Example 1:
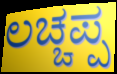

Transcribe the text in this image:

ಲಚ್ಚಪ್ಪ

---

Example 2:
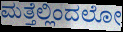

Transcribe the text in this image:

ಮತ್ತೆಲ್ಲಿಂದಲೋ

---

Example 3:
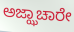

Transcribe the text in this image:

ಅಜ್ಝಾಚಾರೇ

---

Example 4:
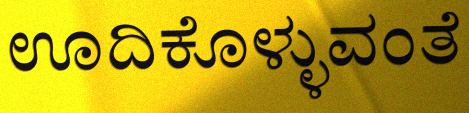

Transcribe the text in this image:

ಊದಿಕೊಳ್ಳುವಂತೆ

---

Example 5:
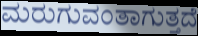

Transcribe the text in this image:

ಮರುಗುವಂತಾಗುತ್ತದೆ